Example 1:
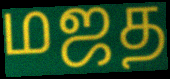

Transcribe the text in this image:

மஜத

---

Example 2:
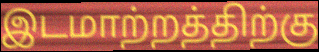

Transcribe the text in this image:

இடமாற்றத்திற்கு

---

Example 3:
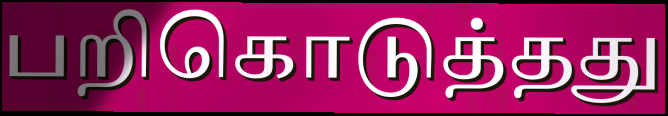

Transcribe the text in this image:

பறிகொடுத்தது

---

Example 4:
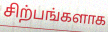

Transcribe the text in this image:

சிற்பங்களாக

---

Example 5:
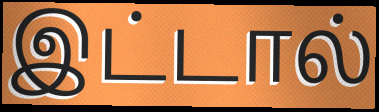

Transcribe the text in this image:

இட்டால்